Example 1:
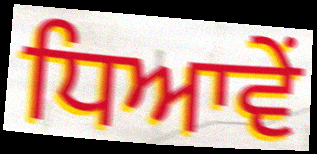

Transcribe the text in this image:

ਧਿਆਵੇਂ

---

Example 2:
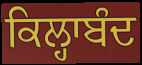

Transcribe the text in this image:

ਕਿਲ੍ਹਾਬੰਦ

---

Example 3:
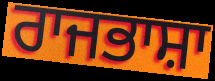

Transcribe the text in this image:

ਰਾਜਭਾਸ਼ਾ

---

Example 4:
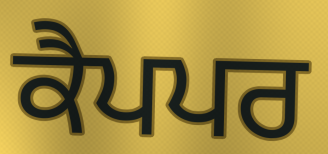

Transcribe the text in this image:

ਕੈਪਪਰ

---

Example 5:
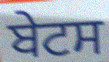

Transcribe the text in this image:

ਬੇਟਸ